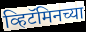
व्हिटॅमिनच्या